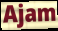
Ajam